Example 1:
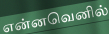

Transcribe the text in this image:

என்னவெனில்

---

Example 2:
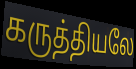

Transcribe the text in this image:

கருத்தியலே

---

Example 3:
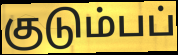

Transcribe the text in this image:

குடும்பப்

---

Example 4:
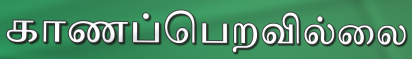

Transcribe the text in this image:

காணப்பெறவில்லை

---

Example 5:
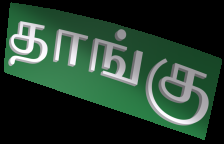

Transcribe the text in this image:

தாங்கு